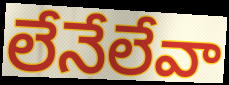
లేనేలేవా